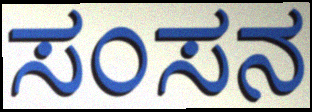
ಸಂಸನ